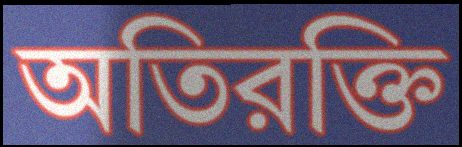
অতিরক্তি